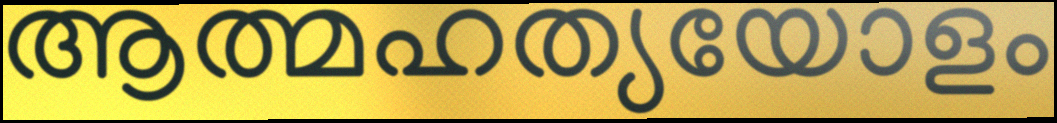
ആത്മഹത്യയോളം